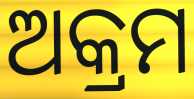
ଅକ୍ରମ